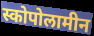
स्कोपोलामीन